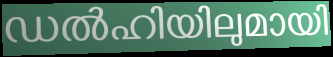
ഡൽഹിയിലുമായി